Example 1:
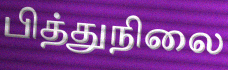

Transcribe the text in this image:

பித்துநிலை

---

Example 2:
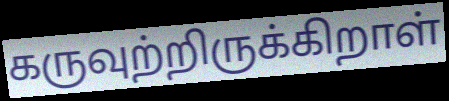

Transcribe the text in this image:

கருவுற்றிருக்கிறாள்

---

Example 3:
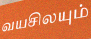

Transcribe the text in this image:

வயசிலயும்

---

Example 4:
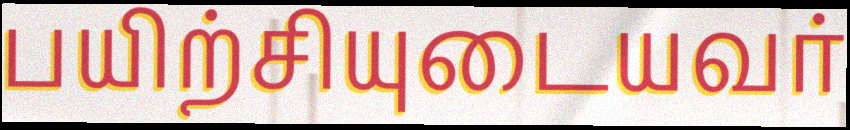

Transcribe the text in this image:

பயிற்சியுடையவர்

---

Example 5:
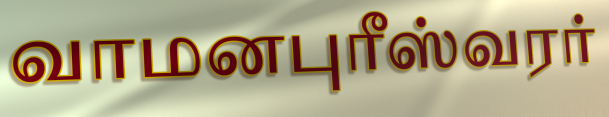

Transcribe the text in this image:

வாமனபுரீஸ்வரர்